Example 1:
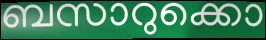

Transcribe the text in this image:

ബസാറുക്കൊ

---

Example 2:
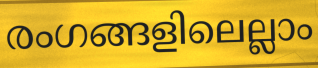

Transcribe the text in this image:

രംഗങ്ങളിലെല്ലാം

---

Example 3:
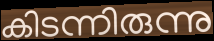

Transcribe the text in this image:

കിടന്നിരുന്നു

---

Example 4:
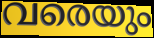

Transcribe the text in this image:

വരെയും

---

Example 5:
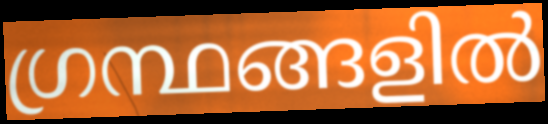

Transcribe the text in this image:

ഗ്രന്ഥങ്ങളിൽ